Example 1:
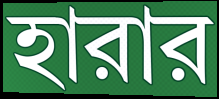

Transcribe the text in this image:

হারার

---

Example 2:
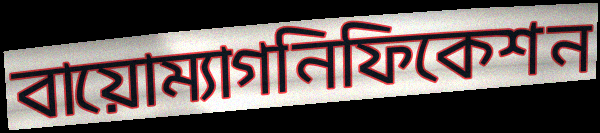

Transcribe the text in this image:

বায়োম্যাগনিফিকেশন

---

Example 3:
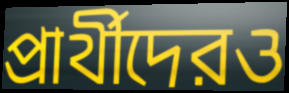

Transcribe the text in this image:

প্রার্থীদেরও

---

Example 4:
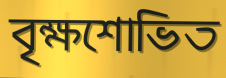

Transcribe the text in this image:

বৃক্ষশোভিত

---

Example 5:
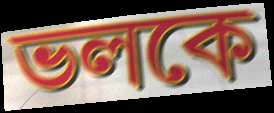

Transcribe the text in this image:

ভলকে